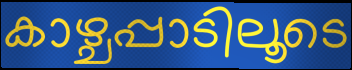
കാഴ്ചപ്പാടിലൂടെ